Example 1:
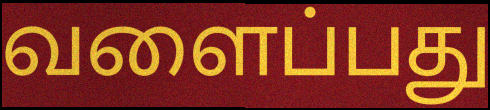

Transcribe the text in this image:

வளைப்பது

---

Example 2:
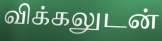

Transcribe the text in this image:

விக்கலுடன்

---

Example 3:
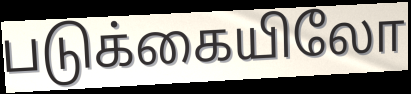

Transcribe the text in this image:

படுக்கையிலோ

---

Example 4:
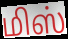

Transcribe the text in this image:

மிஸ்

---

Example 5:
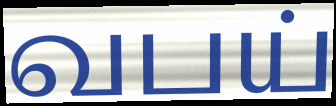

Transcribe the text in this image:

வபய்